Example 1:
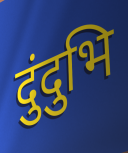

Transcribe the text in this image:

दुंदुभि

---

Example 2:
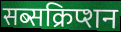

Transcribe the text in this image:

सब्सक्रिप्शन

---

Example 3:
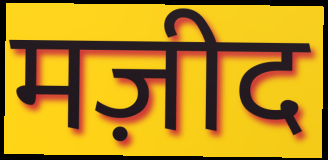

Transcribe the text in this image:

मज़ीद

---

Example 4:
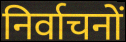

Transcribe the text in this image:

निर्वाचनों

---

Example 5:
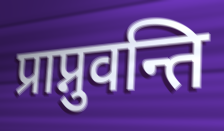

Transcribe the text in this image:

प्राप्नुवन्ति